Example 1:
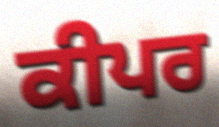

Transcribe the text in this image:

ਕੀਪਰ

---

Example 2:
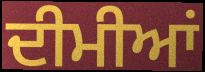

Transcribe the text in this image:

ਦੀਮੀਆਂ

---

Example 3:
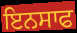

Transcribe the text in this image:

ਇਨਸਾਫ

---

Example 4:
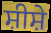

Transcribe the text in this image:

ਸ਼ੀਸ਼ੇ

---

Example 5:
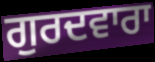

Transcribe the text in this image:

ਗੁਰਦਵਾਰਾ